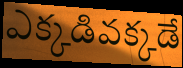
ఎక్కడివక్కడే